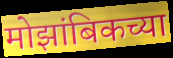
मोझांबिकच्या